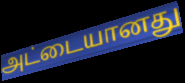
அட்டையானது